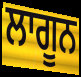
ਲਾਗੂਨ